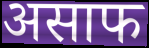
असाफ